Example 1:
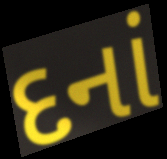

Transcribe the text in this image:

દનાં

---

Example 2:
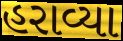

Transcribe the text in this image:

હરાવ્યા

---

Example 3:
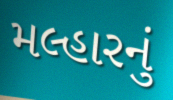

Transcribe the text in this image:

મલ્હારનું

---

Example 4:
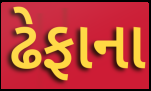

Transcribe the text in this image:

ઢેફાના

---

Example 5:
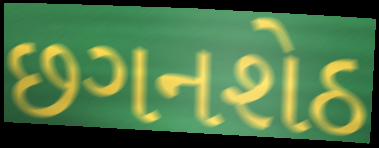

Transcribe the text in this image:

છગનશેઠ